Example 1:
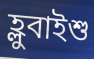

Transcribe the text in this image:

হ্লুবাইশু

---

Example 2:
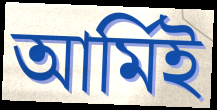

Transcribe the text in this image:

আর্মিই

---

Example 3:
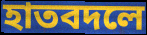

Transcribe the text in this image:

হাতবদলে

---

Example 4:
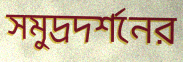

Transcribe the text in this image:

সমুদ্রদর্শনের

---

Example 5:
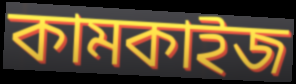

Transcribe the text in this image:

কামকাইজ